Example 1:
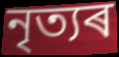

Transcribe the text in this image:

নৃত্যৰ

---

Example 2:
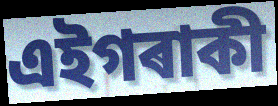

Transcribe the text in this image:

এইগৰাকী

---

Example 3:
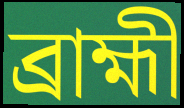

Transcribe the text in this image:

ব্ৰাহ্মী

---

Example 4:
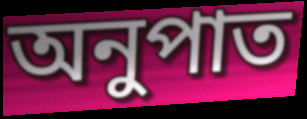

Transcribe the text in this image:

অনুপাত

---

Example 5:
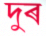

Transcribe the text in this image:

দুৰ